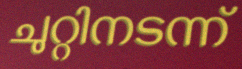
ചുറ്റിനടന്ന്